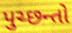
પુચ્છન્તો